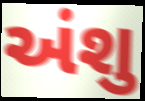
અંશુ